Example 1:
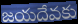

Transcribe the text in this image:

జయదేవకు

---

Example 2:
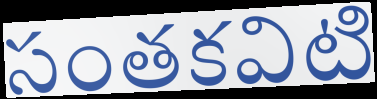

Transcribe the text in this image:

సంతకవిటి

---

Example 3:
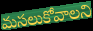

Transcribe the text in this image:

మసలుకోవాలని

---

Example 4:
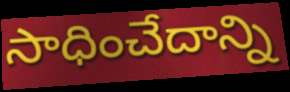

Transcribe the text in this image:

సాధించేదాన్ని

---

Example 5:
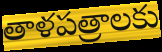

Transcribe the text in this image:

తాళపత్రాలకు